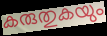
കരുതുകയും